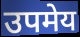
उपमेय